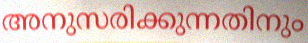
അനുസരിക്കുന്നതിനും